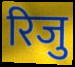
रिजु